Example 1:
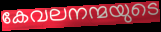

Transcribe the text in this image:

കേവലനന്മയുടെ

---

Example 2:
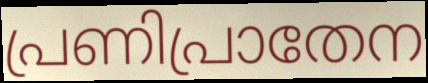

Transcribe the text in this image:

പ്രണിപ്രാതേന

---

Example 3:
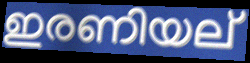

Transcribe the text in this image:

ഇരണിയല്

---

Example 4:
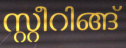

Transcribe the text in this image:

സ്റ്റീറിങ്ങ്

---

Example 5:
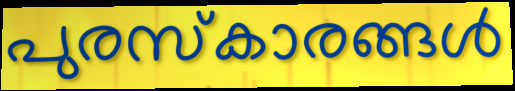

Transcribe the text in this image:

പുരസ്കാരങ്ങൾ